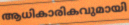
ആധികാരികവുമായി